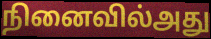
நினைவில்அது